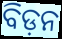
ବିଡ଼ନ